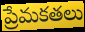
ప్రేమకతలు